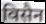
विसैन